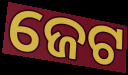
ଜେଟ